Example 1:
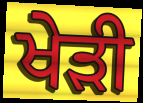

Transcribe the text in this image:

ਖੇੜੀ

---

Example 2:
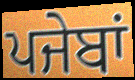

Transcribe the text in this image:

ਪਜੇਬਾਂ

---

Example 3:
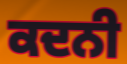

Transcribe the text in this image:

ਕਦਨੀ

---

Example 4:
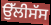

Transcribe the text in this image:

ਉੱਲੀਸੱਸ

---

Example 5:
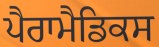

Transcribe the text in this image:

ਪੈਰਾਮੈਡਿਕਸ